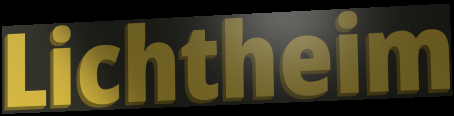
Lichtheim